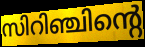
സിറിഞ്ചിന്റെ